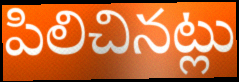
పిలిచినట్లు